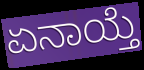
ಏನಾಯ್ತೆ